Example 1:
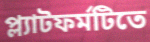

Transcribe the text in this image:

প্ল্যাটফর্মটিতে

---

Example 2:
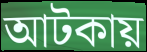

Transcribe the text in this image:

আটকায়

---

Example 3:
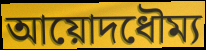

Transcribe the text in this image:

আয়োদধৌম্য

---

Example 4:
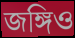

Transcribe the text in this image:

জঙ্গিও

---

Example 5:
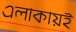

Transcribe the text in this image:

এলাকায়ই